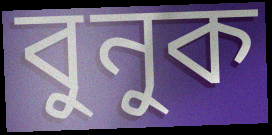
বুনুক